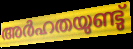
അർഹതയുണ്ടു്